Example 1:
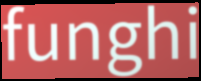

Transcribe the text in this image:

funghi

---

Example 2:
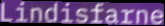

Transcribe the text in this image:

Lindisfarne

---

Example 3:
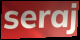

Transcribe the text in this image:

seraj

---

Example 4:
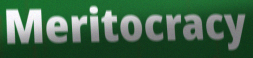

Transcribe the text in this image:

Meritocracy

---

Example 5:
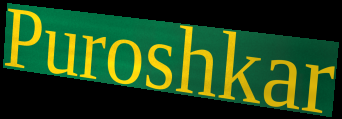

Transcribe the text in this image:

Puroshkar